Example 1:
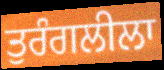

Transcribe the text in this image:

ਤੁਰੰਗਲੀਲਾ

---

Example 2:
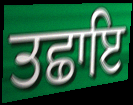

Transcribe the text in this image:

ਤਛਾਇ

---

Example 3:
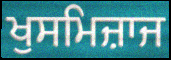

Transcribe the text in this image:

ਖੁਸਮਿਜ਼ਾਜ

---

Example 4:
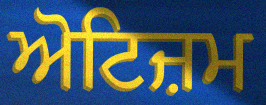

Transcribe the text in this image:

ਅੋਟਿਜ਼ਮ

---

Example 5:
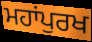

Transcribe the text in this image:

ਮਹਾਂਪੁਰਖ